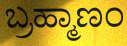
ಬ್ರಹ್ಮಾಣಂ